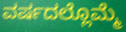
ವರ್ಷದಲ್ಲೊಮ್ಮೆ